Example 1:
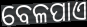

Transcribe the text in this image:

ବେଳପାଏ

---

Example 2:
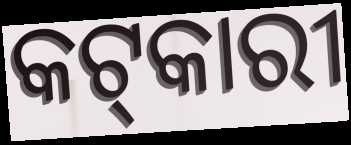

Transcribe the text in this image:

କଟ୍‌କାରୀ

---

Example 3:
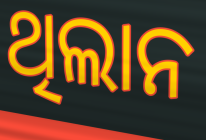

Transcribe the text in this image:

ଥିଲାନ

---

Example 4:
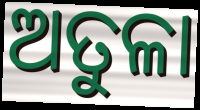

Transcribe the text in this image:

ଅତୁଳା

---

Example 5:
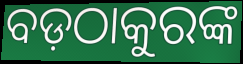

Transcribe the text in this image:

ବଡ଼ଠାକୁରଙ୍କ